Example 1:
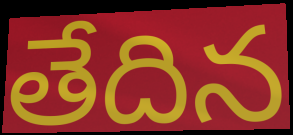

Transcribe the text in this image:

తేదిన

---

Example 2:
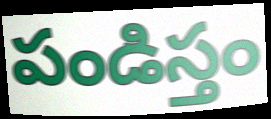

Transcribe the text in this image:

పండిస్తం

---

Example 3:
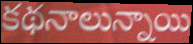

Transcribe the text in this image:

కథనాలున్నాయి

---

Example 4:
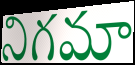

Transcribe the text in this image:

నిగమా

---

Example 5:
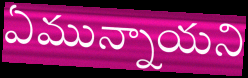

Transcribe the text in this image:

ఏమున్నాయని